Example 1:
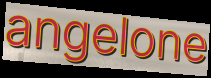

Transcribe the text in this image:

angelone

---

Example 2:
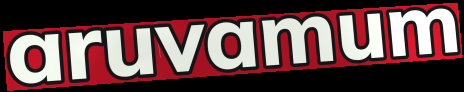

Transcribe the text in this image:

aruvamum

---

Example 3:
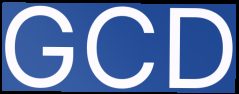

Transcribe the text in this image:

GCD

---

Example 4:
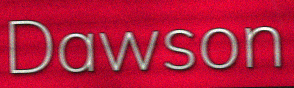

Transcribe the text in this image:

Dawson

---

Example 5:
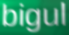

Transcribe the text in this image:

bigul